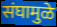
संघामुळे